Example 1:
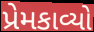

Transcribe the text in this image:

પ્રેમકાવ્યો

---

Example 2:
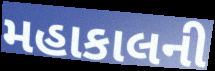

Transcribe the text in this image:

મહાકાલની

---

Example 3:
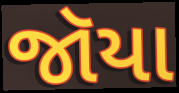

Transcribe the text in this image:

જૉયા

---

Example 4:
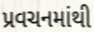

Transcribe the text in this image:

પ્રવચનમાંથી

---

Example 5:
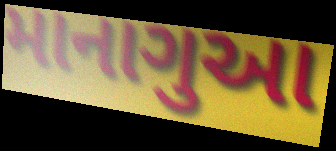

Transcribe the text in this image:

માનાગુઆ